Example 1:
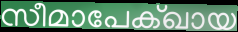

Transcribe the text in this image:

സീമാപേക്ഖായ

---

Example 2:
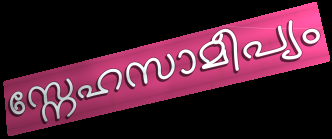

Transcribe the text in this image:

സ്നേഹസാമീപ്യം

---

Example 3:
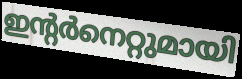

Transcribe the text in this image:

ഇന്റർനെറ്റുമായി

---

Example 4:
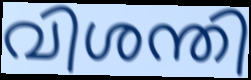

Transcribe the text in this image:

വിശന്തി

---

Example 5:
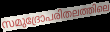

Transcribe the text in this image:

സമുദ്രോപരിതലത്തിലെ